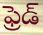
ఫ్రెడ్